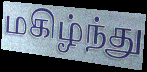
மகிழ்ந்து